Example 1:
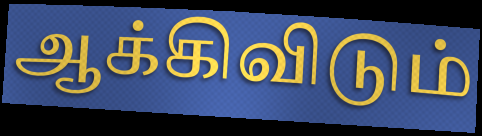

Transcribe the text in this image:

ஆக்கிவிடும்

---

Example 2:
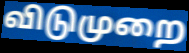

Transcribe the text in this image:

விடுமுறை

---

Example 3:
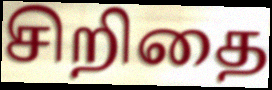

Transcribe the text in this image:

சிறிதை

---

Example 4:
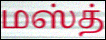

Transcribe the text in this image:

மஸ்த்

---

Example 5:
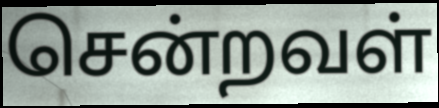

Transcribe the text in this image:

சென்றவள்